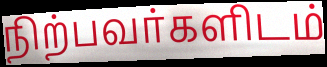
நிற்பவர்களிடம்